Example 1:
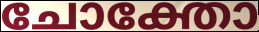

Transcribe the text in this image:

ചോക്തോ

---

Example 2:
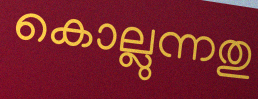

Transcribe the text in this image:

കൊല്ലുന്നതു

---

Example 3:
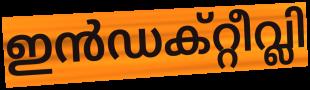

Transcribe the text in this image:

ഇൻഡക്റ്റീവ്ലി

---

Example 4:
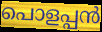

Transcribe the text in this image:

പൊളപ്പൻ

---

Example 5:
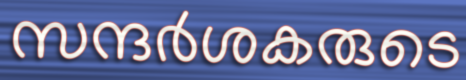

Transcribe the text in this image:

സന്ദർശകരുടെ